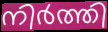
നിർത്തി